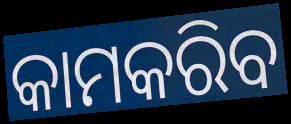
କାମକରିବ